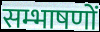
सम्भाषणों